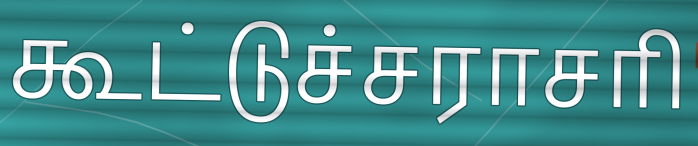
கூட்டுச்சராசரி